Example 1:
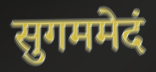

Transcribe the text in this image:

सुगममेदं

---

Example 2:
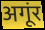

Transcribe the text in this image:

अगूंर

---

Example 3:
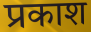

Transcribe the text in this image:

प्रकाश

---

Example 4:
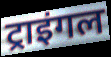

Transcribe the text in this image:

ट्राइंगल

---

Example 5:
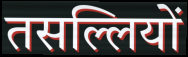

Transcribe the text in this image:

तसल्लियों